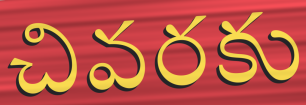
చివరకు